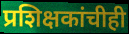
प्रशिक्षकांचीही